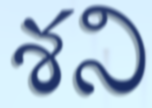
శని